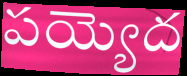
పయ్యెద